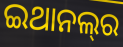
ଇଥାନଲ୍‌ର